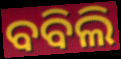
ବବିଲି